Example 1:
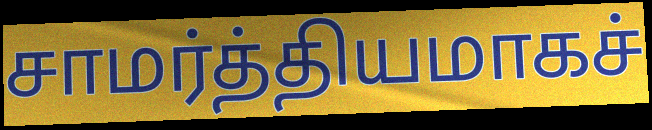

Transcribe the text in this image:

சாமர்த்தியமாகச்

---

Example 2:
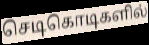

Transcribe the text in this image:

செடிகொடிகளில்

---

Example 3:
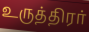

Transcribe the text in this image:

உருத்திரர்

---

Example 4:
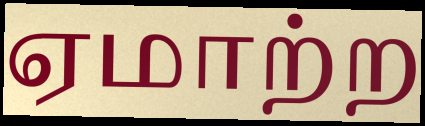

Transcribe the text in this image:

ஏமாற்ற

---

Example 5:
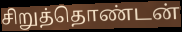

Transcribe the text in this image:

சிறுத்தொண்டன்